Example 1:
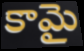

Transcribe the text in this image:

కామై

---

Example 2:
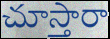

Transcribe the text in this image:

చూస్తారా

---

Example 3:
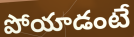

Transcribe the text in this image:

పోయాడంటే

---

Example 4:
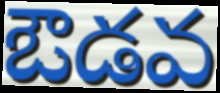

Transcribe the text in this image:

ఔడవ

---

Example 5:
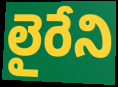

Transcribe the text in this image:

లైరేని